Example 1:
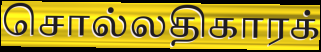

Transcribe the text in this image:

சொல்லதிகாரக்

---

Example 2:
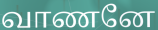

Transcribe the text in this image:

வாணனே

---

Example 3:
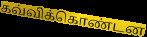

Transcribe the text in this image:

கவ்விக்கொண்டன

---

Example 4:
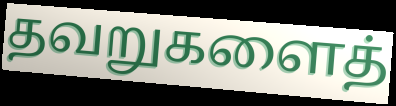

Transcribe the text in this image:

தவறுகளைத்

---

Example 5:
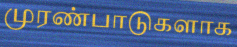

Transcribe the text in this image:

முரண்பாடுகளாக